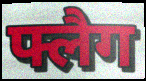
फ्लैग